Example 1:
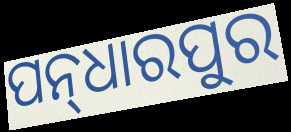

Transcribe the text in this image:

ପନ୍‌ଧାରପୁର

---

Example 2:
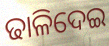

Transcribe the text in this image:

ଢାଳିଦେଇ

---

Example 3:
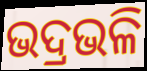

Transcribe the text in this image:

ଭଦ୍ରଭଳି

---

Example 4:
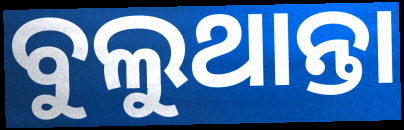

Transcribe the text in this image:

ବୁଲୁଥାନ୍ତା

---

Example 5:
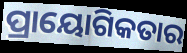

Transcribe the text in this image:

ପ୍ରାୟୋଗିକତାର